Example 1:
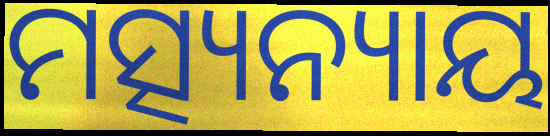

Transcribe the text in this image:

ମତ୍ସ୍ୟନ୍ୟାୟ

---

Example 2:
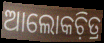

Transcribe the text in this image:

ଆଲୋକଚ଼ିତ୍ର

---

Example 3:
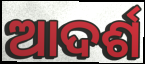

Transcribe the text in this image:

ଆଦର୍ଶ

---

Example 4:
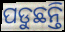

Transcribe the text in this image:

ପଡୁଛନ୍ତି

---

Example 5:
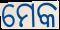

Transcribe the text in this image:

ମେକ